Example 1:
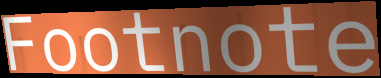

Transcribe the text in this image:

Footnote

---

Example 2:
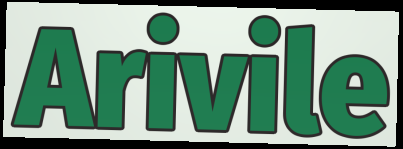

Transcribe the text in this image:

Arivile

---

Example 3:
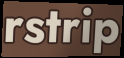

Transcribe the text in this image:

rstrip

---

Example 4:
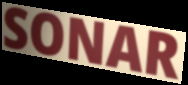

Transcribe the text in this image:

SONAR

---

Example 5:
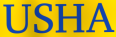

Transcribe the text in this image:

USHA